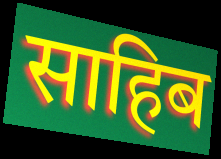
साहिब